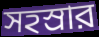
সহস্রার